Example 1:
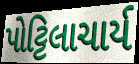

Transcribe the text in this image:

પોટ્ટિલાચાર્ય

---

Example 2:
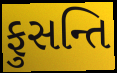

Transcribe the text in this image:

ફુસન્તિ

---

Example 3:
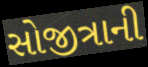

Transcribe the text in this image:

સોજીત્રાની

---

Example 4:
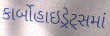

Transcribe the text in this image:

કાર્બોહાઇડ્રેટ્સમાં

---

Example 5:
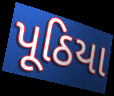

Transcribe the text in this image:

પૂઠિયા